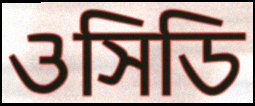
ওসিডি